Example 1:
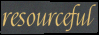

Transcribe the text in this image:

resourceful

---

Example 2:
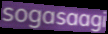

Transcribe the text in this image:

sogasaagi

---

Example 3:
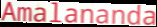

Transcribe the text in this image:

Amalananda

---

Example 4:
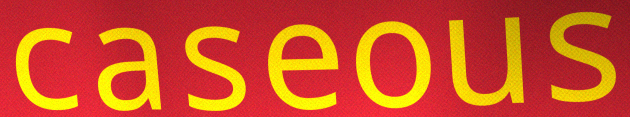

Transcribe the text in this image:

caseous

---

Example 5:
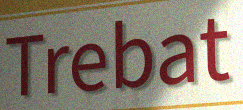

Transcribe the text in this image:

Trebat